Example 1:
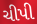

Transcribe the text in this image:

ચીપી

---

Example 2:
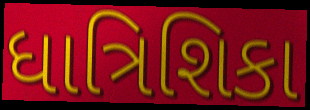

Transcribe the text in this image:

ધાત્રિશિકા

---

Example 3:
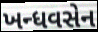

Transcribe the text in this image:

ખન્ધવસેન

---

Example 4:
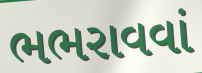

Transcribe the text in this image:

ભભરાવવાં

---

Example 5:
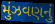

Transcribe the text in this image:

મુંઝવણનું